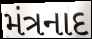
મંત્રનાદ